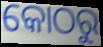
କୋଠରୁ